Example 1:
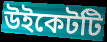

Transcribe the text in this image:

উইকেটটি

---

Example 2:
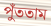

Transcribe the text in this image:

পুঁততাম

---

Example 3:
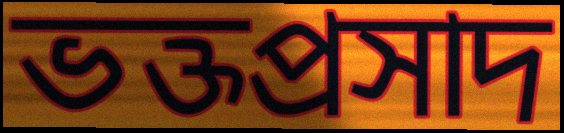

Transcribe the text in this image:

ভক্তপ্রসাদ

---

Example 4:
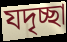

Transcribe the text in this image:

যদৃচ্ছা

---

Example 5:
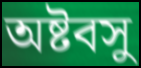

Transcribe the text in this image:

অষ্টবসু